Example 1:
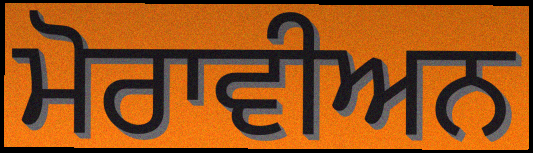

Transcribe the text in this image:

ਮੋਰਾਵੀਅਨ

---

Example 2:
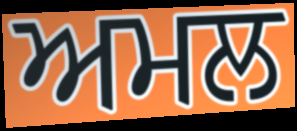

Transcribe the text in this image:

ਅਮਲ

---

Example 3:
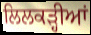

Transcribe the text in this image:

ਲਿਲਕੜ੍ਹੀਆਂ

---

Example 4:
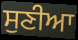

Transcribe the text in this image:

ਸੁਣੀਆ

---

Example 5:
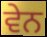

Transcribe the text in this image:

ਵੇਨ